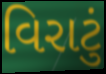
વિરાટું